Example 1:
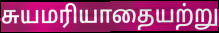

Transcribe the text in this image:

சுயமரியாதையற்று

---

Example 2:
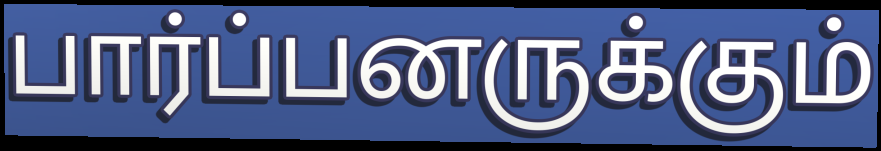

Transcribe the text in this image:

பார்ப்பனருக்கும்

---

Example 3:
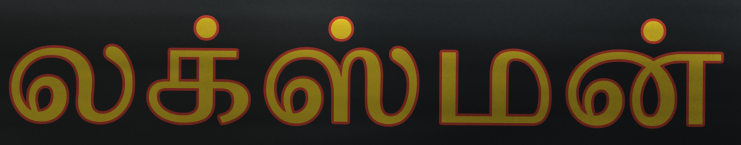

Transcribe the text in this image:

லக்ஸ்மன்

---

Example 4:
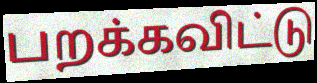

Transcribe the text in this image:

பறக்கவிட்டு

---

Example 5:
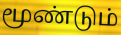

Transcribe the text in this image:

மூண்டும்